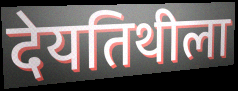
देयतिथीला